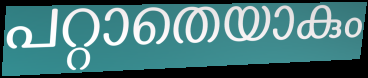
പറ്റാതെയാകും